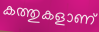
കത്തുകളാണ്